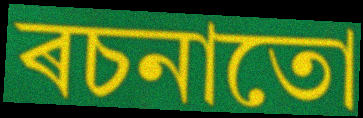
ৰচনাতো